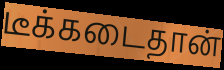
டீக்கடைதான்